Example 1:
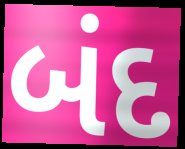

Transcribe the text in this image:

બંદ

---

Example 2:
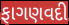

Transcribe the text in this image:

ફાગણવદી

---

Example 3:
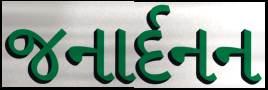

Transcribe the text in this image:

જનાર્દનન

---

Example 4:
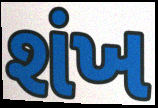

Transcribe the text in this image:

શંખ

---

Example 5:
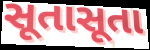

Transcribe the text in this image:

સૂતાસૂતા